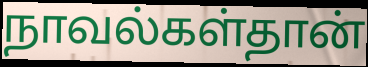
நாவல்கள்தான்